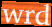
wrd